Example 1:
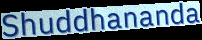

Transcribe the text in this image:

Shuddhananda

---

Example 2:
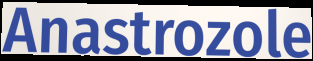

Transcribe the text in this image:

Anastrozole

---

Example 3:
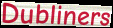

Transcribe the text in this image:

Dubliners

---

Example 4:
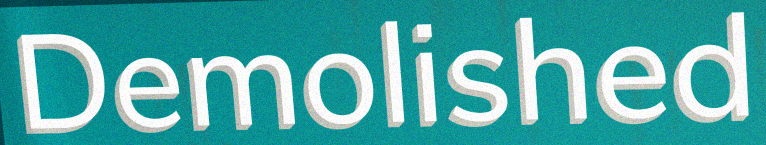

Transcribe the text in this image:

Demolished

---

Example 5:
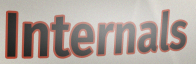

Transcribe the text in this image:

Internals